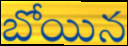
బోయిన